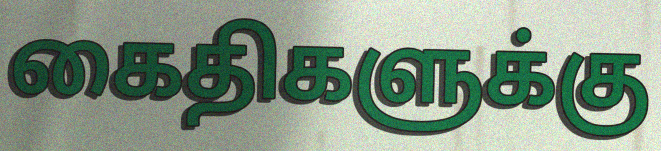
கைதிகளுக்கு